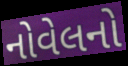
નોવેલનો